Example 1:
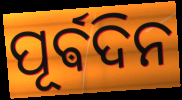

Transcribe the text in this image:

ପୂର୍ଵଦିନ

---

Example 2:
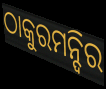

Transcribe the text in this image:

ଠାକୁରମନ୍ଦିର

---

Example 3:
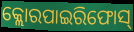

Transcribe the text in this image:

କ୍ଲୋରପାଇରିଫୋସ୍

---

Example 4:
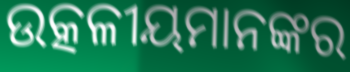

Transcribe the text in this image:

ଉତ୍କଳୀୟମାନଙ୍କର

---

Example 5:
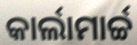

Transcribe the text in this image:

କାର୍ଲାମାର୍ଚ୍ଚ